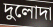
দুলোদা